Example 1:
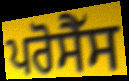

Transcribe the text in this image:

ਪਰੋਸੈੱਸ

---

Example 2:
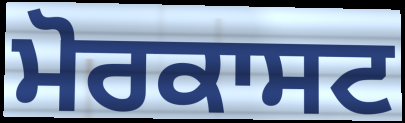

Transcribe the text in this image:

ਮੋਰਕਾਸਟ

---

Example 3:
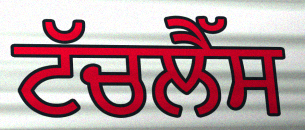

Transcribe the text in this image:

ਟੱਚਲੈੱਸ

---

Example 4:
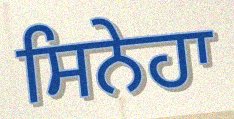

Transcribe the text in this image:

ਸਿਨੇਹਾ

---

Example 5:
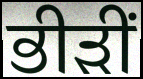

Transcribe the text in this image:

ਭੀੜੀਂ